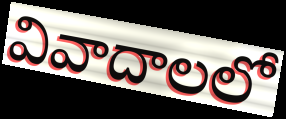
వివాదాలలో